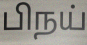
பிநய்